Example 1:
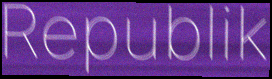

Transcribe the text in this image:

Republik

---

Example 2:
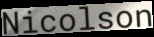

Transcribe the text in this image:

Nicolson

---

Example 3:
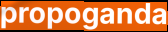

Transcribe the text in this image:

propoganda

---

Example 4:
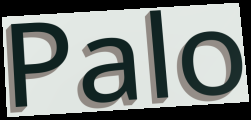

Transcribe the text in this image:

Palo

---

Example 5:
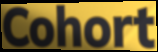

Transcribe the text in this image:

Cohort